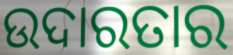
ଉଦାରତାର